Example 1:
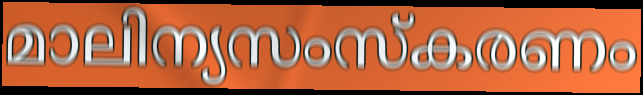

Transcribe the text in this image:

മാലിന്യസംസ്കരണം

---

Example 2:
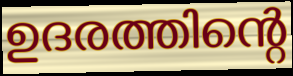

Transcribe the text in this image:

ഉദരത്തിന്റെ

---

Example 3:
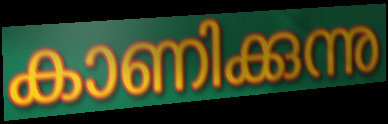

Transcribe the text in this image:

കാണിക്കുന്നു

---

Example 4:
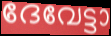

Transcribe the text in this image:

ദേവേട്ടാ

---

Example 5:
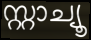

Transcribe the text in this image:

സ്റ്റാച്യൂ